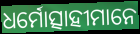
ଧର୍ମୋତ୍ସାହୀମାନେ